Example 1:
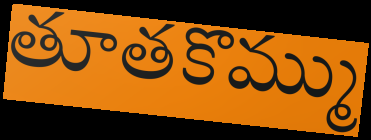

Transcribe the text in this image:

తూతకొమ్ము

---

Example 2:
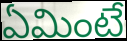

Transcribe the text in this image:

ఏమింటే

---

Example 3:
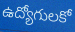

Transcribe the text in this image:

ఉద్యోగులకో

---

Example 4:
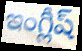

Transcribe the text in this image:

ఇంగ్లీష్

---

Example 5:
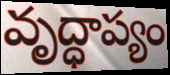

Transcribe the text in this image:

వృద్ధాప్యం